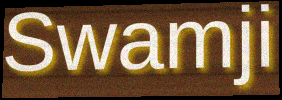
Swamji